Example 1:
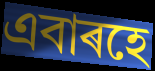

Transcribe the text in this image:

এবাৰহে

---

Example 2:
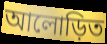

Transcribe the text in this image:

আলোড়িত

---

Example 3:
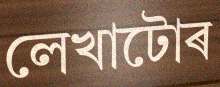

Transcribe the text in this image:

লেখাটোৰ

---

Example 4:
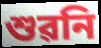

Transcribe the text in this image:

শুৱনি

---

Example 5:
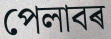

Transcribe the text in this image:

পেলাবৰ